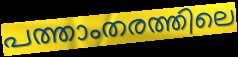
പത്താംതരത്തിലെ